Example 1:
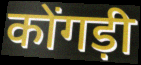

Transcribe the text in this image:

कोंगड़ी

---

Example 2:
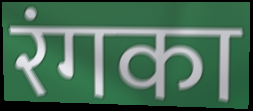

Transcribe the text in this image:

रंगका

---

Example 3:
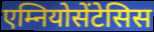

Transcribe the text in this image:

एम्नियोसेंटेसिस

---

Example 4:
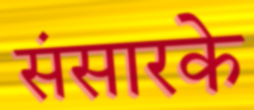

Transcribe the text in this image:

संसारके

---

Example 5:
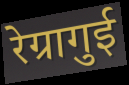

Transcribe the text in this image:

रेग्रागुई